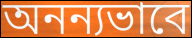
অনন্যভাবে